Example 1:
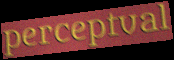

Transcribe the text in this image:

perceptual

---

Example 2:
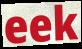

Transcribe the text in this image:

eek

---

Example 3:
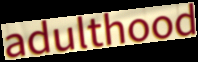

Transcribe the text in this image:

adulthood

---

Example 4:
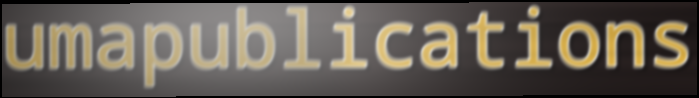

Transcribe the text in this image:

umapublications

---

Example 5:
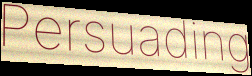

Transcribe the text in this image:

Persuading